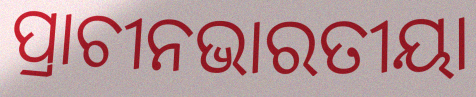
ପ୍ରାଚୀନଭାରତୀୟା